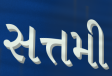
સત્તમી